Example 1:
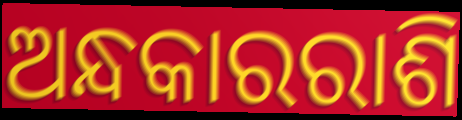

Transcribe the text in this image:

ଅନ୍ଧକାରରାଶି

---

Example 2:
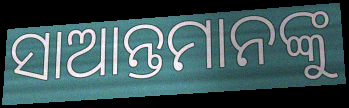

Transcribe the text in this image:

ସାଆନ୍ତମାନଙ୍କୁ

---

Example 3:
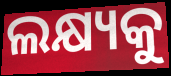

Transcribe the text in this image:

ଲକ୍ଷ୍ୟକୁ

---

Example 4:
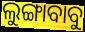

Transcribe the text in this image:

ଲୁଙ୍ଗାବାବୁ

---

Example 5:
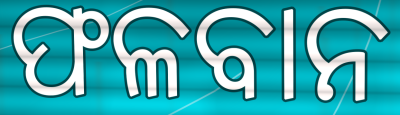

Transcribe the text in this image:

ଫଳବାନ